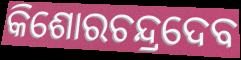
କିଶୋରଚନ୍ଦ୍ରଦେବ